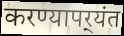
करण्यापर्यंत